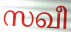
സഖീ